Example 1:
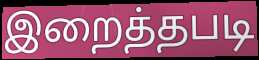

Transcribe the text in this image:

இறைத்தபடி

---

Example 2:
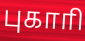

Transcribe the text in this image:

புகாரி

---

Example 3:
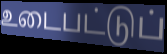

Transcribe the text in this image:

உடைபட்டுப்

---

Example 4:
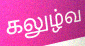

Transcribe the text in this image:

கலுழ்வ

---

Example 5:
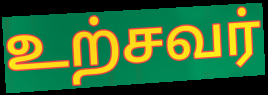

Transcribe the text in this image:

உற்சவர்